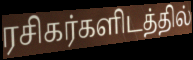
ரசிகர்களிடத்தில்